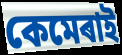
কেমেৰাই